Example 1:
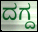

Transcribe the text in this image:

ದಗ್ದ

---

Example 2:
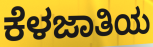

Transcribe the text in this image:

ಕೆಳಜಾತಿಯ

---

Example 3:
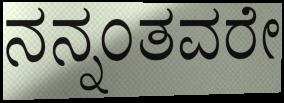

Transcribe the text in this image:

ನನ್ನಂತವರೇ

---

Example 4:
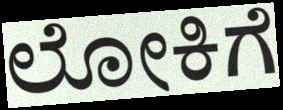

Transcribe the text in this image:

ಲೋಕಿಗೆ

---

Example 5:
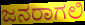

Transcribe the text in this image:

ಜನರಾಗಲಿ